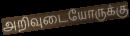
அறிவுடையோருக்கு